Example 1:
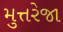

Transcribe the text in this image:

મુત્તરેજા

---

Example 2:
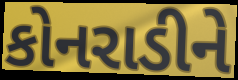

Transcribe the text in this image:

કોનરાડીને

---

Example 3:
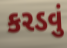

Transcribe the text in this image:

કરડવું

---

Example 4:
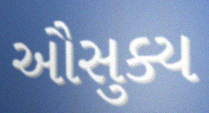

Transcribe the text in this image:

ઔસુક્ય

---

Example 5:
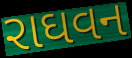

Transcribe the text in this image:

રાઘવન